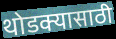
थोडक्यासाठी